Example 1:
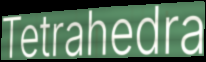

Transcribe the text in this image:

Tetrahedra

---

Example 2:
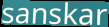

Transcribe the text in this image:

sanskar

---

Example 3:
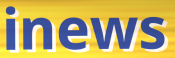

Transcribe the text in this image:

inews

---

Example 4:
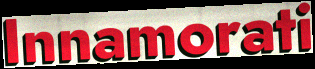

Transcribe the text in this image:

Innamorati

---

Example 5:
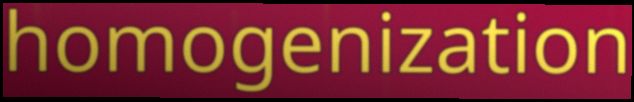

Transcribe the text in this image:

homogenization